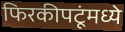
फिरकीपटूंमध्ये